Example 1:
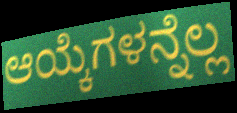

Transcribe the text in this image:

ಆಯ್ಕೆಗಳನ್ನೆಲ್ಲ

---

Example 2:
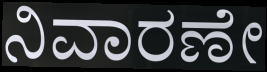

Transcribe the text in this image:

ನಿವಾರಣೇ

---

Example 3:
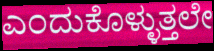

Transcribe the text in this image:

ಎಂದುಕೊಳ್ಳುತ್ತಲೇ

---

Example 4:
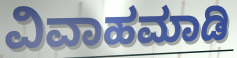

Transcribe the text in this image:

ವಿವಾಹಮಾಡಿ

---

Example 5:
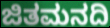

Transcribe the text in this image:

ಜಿತಮನದಿ